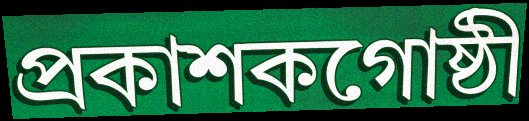
প্রকাশকগোষ্ঠী